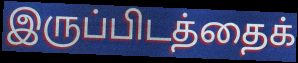
இருப்பிடத்தைக்